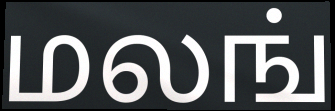
மலங்